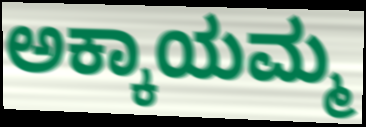
ಅಕ್ಕಾಯಮ್ಮ